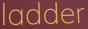
ladder